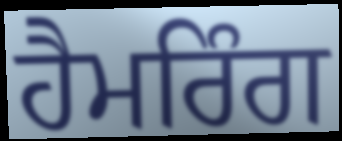
ਹੈਮਰਿੰਗ